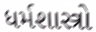
ધર્મશાસ્ત્રો